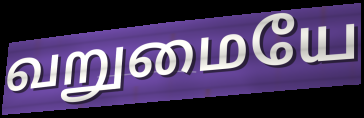
வறுமையே